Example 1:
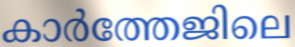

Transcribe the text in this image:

കാർത്തേജിലെ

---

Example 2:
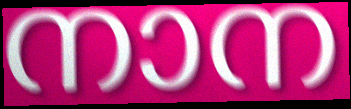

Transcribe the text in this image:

നാന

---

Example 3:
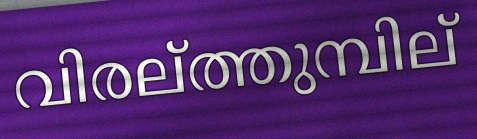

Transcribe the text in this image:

വിരല്ത്തുമ്പില്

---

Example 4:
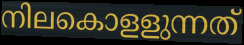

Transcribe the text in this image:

നിലകൊളളുന്നത്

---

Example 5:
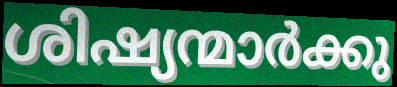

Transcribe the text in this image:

ശിഷ്യന്മാർക്കു